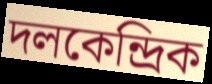
দলকেন্দ্রিক